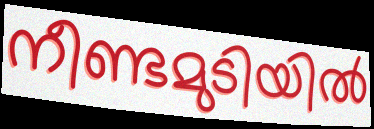
നീണ്ടമുടിയിൽ